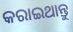
କରାଇଥାନ୍ତୁ